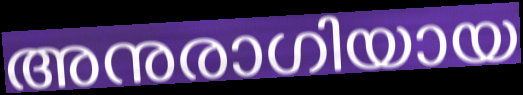
അനുരാഗിയായ